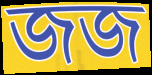
জজ